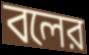
বলের